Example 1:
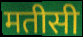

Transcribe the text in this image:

मतीसी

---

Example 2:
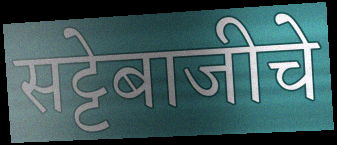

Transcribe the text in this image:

सट्टेबाजीचे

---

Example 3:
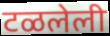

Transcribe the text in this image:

टळलेली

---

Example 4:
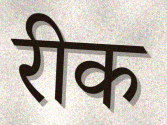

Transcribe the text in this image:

रीक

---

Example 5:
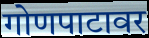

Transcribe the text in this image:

गोणपाटावर